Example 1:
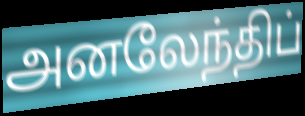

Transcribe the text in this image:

அனலேந்திப்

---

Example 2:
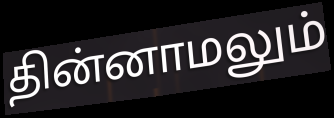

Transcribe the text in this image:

தின்னாமலும்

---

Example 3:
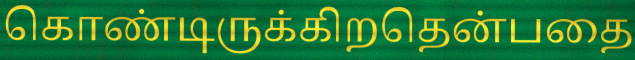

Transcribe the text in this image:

கொண்டிருக்கிறதென்பதை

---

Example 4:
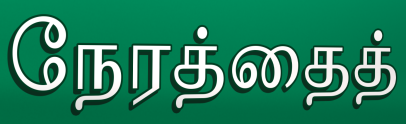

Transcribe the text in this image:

நேரத்தைத்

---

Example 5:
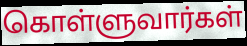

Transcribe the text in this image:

கொள்ளுவார்கள்